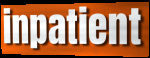
inpatient